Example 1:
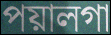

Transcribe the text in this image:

পয়ালগা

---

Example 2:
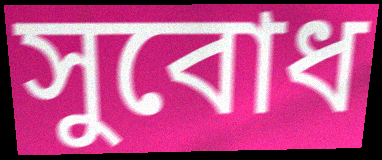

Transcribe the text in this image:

সুবোধ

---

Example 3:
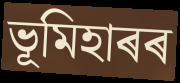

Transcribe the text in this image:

ভূমিহাৰৰ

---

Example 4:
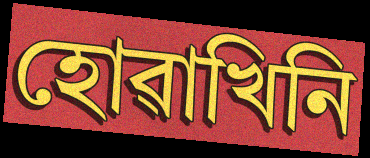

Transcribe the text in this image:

হোৱাখিনি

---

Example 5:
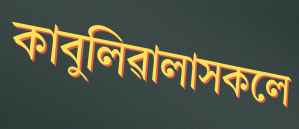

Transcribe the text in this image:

কাবুলিৱালাসকলে